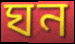
ঘন